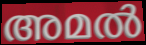
അമൽ